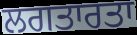
ਲਗਤਾਰਤਾ